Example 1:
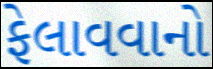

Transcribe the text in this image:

ફેલાવવાનો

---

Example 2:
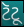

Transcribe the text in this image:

ટૅટૂ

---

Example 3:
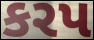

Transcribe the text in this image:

કરપ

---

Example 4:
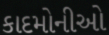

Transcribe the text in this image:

કાદમોનીઓ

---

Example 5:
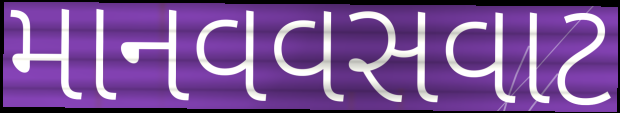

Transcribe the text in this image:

માનવવસવાટ